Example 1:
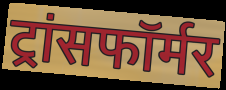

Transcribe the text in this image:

ट्रांसफॉर्मर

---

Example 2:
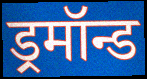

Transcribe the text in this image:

ड्रमॉन्ड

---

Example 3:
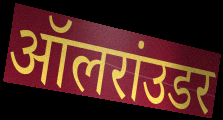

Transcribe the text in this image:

ऑलरांउडर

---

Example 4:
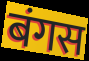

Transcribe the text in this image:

बंगस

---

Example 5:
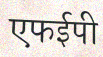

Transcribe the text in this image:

एफईपी